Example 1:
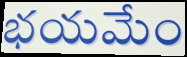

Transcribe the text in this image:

భయమేం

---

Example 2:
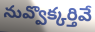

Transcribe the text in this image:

నువ్వొక్కర్తివే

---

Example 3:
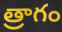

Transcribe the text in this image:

త్రాగం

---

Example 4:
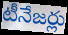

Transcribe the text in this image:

టీనేజర్లు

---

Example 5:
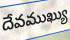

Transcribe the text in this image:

దేవముఖ్యు